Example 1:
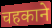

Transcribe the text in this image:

चहकाने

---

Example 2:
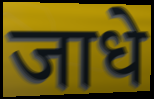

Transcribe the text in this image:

जाधे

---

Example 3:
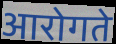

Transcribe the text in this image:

आरोगते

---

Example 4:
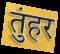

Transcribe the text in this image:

तुंहर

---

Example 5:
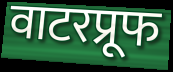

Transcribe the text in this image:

वाटरप्रूफ